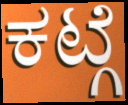
ಕಟ್ಗೆ